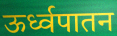
ऊर्ध्वपातन